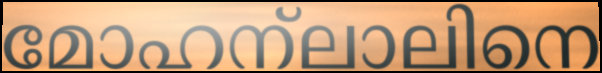
മോഹന്ലാലിനെ